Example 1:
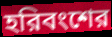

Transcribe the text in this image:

হরিবংশের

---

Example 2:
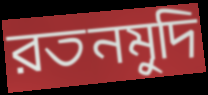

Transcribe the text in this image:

রতনমুদি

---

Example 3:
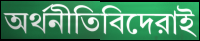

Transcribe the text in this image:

অর্থনীতিবিদেরাই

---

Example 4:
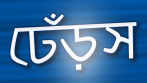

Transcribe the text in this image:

ঢেঁড়স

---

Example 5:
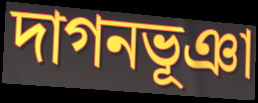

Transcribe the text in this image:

দাগনভূঞা